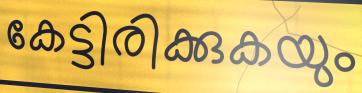
കേട്ടിരിക്കുകയും